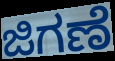
ಜಿಗಣೆ